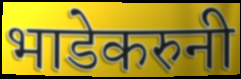
भाडेकरुनी